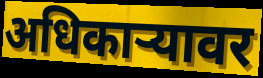
अधिकाऱ्यावर